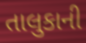
તાલુકાની